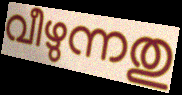
വീഴുന്നതു